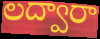
లద్వారా